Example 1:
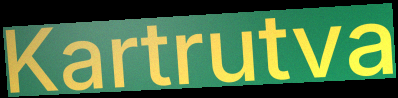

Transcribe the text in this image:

Kartrutva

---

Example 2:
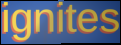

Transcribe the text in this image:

ignites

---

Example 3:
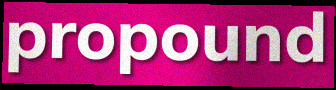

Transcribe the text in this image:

propound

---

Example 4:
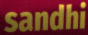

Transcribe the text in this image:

sandhi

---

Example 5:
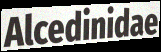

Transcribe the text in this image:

Alcedinidae